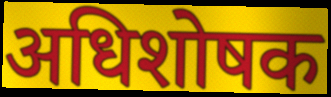
अधिशोषक